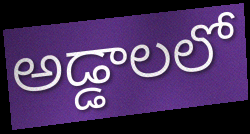
అడ్డాలలో